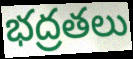
భద్రతలు